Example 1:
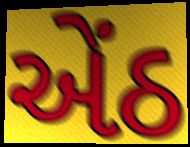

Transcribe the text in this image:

એંઠ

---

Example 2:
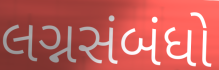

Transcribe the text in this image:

લગ્નસંબંધો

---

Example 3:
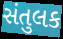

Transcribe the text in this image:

સંતુલક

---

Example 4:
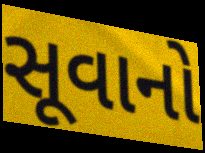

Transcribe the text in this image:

સૂવાનો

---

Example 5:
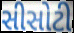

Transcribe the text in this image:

સીસોટી